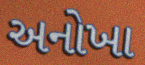
અનોખા